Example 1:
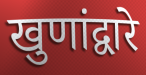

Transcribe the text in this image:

खुणांद्वारे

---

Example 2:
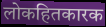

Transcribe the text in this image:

लोकहितकारक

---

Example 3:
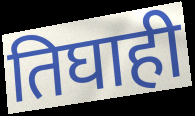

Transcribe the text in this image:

तिघाही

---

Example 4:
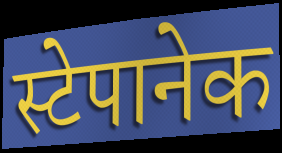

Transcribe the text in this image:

स्टेपानेक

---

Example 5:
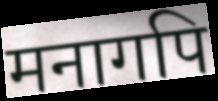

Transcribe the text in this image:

मनागपि